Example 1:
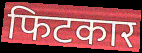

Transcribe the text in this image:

फिटकार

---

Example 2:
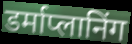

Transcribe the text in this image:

डर्माप्लानिंग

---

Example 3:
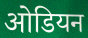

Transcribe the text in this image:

ओडियन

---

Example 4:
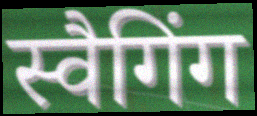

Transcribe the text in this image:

स्वैगिंग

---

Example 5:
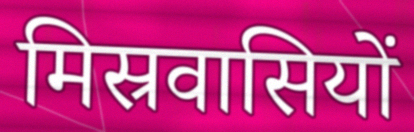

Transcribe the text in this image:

मिस्रवासियों